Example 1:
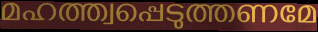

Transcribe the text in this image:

മഹത്ത്വപ്പെടുത്തണമേ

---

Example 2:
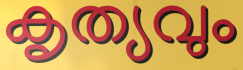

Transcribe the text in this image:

കൃത്യവും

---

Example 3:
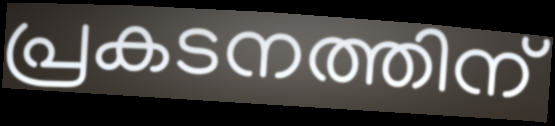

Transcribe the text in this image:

പ്രകടനത്തിന്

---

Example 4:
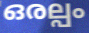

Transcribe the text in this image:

ഒരല്പം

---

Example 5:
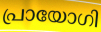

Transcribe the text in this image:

പ്രായോഗി